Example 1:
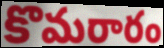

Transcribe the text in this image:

కొమరారం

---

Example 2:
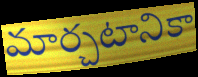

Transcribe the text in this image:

మార్చటానికా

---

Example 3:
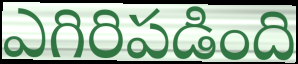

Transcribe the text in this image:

ఎగిరిపడింది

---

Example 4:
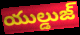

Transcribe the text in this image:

యుల్డుజ్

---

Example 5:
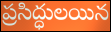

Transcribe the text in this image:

ప్రసిద్ధులయిన